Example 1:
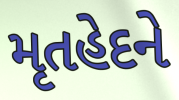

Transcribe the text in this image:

મૃતહેદને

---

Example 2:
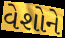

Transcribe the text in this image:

વેશોને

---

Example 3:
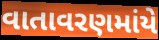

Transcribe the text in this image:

વાતાવરણમાંયે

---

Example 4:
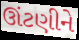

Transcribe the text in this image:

ઊંટણીને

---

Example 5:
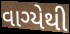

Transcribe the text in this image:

વાગ્યેથી